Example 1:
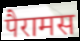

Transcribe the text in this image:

पैरामस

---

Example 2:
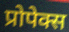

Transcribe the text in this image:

प्रोपेक्स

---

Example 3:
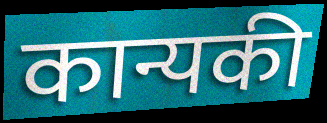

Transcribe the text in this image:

कान्यकी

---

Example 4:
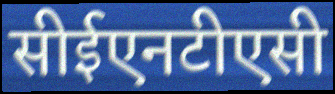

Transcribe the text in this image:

सीईएनटीएसी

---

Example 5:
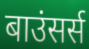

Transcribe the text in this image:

बाउंसर्स